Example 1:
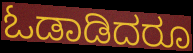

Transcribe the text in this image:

ಓಡಾಡಿದರೂ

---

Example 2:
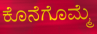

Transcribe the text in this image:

ಕೊನೆಗೊಮ್ಮೆ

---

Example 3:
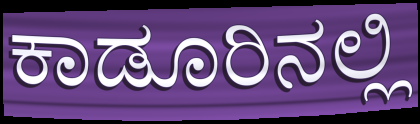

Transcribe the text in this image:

ಕಾಡೂರಿನಲ್ಲಿ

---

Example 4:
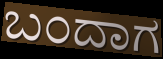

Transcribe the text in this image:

ಬಂದಾಗ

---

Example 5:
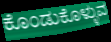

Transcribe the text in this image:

ಕೊಂಡುಕೊಳ್ಳುವ